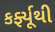
કર્ફ્યૂથી